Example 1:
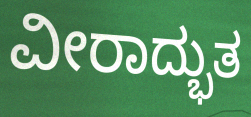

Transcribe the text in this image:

ವೀರಾದ್ಭುತ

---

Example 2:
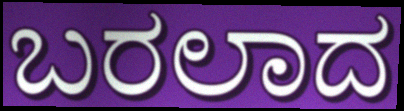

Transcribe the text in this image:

ಬರಲಾದ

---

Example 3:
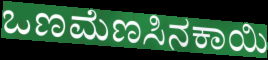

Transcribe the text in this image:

ಒಣಮೆಣಸಿನಕಾಯಿ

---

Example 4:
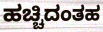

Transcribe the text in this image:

ಹಚ್ಚಿದಂತಹ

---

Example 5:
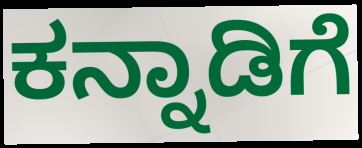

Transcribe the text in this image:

ಕನ್ನಾಡಿಗೆ